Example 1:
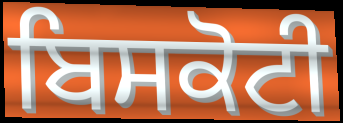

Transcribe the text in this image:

ਬਿਸਕੋਟੀ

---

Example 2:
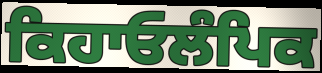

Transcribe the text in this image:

ਕਿਹਾਓਲੰਪਿਕ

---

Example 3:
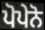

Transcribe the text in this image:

ਪੋਪੇਨੋ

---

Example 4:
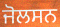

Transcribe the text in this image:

ਜੋਲਸਨ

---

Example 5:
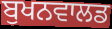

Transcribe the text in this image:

ਬੁਖਨਵਾਲਡ